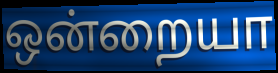
ஒன்றையா